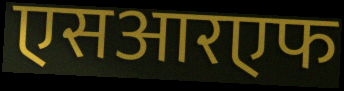
एसआरएफ